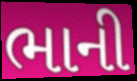
ભાની